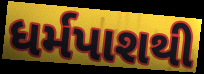
ધર્મપાશથી